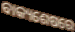
ବାକ୍ୟଶେଷରେ